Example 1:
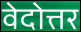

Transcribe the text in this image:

वेदोत्तर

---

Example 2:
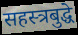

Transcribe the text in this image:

सहस्त्रबुद्धे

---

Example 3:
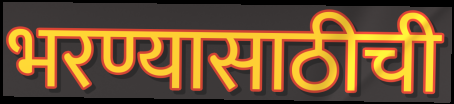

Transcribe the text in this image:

भरण्यासाठीची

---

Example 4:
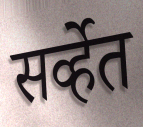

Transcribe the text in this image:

सर्व्हेत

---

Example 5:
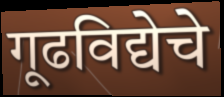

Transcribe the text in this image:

गूढविद्येचे